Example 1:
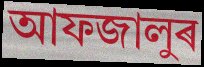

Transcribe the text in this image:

আফজালুৰ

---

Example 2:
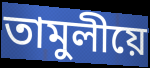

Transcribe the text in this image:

তামুলীয়ে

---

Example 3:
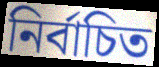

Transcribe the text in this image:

নিৰ্বাচিত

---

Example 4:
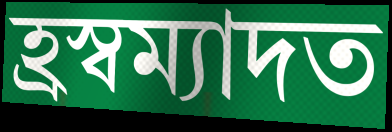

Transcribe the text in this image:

হ্ৰস্বম্যাদত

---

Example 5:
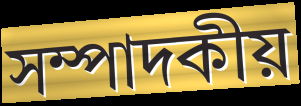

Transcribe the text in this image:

সম্পাদকীয়